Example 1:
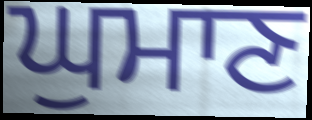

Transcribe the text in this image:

ਘੁਮਾਣ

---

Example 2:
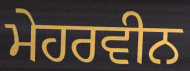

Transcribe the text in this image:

ਮੇਹਰਵੀਨ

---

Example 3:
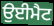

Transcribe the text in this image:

ਉਈਮੈਟ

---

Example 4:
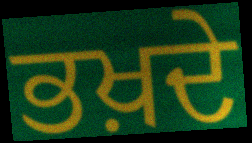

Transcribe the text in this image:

ਭਖ਼ਦੇ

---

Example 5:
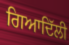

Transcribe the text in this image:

ਗਿਆਦਿੱਲੀ